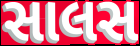
સાલસ